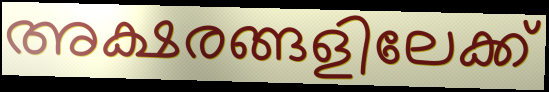
അക്ഷരങ്ങളിലേക്ക്